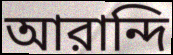
আরান্দি